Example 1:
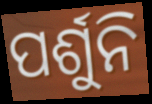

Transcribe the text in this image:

ପର୍ଶୁନି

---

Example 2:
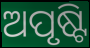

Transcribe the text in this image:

ଅପୃଷ୍ଟି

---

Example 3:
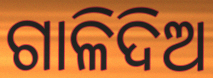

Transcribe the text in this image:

ଗାଳିଦିଅ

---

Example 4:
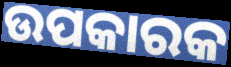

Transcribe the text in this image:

ଉପକାରକ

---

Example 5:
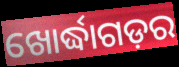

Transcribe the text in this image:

ଖୋର୍ଦ୍ଧାଗଡ଼ର